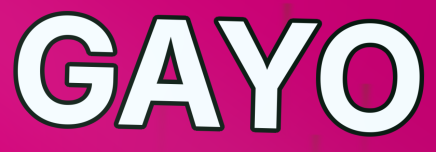
GAYO